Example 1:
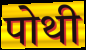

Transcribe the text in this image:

पोथी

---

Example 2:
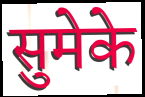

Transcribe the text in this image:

सुमेके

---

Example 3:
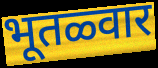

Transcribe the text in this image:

भूतळ्वार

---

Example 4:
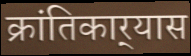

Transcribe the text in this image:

क्रांतिकार्यास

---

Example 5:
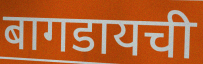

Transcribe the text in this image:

बागडायची